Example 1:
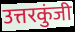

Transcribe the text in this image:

उत्तरकुंजी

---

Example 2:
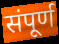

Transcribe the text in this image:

संपूर्ण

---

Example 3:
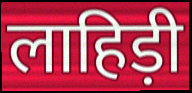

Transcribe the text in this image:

लाहिड़ी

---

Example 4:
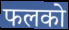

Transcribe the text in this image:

फलको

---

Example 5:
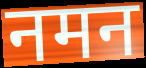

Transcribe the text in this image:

नमन